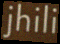
jhili